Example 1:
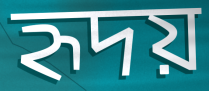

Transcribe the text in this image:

হৃদয়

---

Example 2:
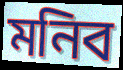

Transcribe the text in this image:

মনিব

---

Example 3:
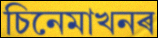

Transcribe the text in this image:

চিনেমাখনৰ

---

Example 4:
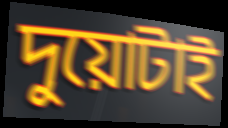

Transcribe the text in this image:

দুয়োটাই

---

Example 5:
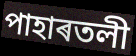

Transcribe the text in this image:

পাহাৰতলী